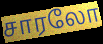
சாரலோ